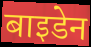
बाइडेन